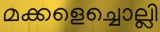
മക്കളെച്ചൊല്ലി